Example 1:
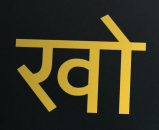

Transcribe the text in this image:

खो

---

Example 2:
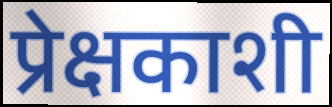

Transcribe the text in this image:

प्रेक्षकाशी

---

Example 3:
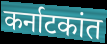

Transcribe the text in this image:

कर्नाटकांत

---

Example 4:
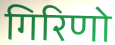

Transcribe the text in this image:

गिरिणो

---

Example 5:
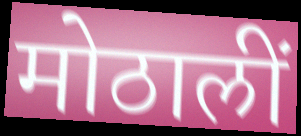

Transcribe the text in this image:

मोठालीं